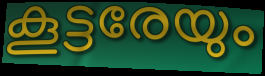
കൂട്ടരേയും